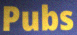
Pubs